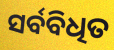
ସର୍ବବିଧିତ